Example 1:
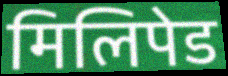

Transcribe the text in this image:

मिलिपेड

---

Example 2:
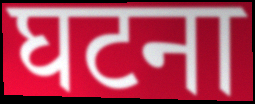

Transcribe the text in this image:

घटना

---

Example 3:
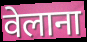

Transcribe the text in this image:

वेलाना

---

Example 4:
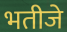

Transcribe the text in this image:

भतीजे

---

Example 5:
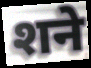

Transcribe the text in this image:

शने